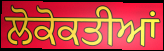
ਲੋਕੋਕਤੀਆਂ